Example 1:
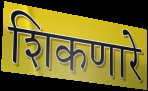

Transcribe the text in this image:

शिकणारे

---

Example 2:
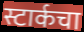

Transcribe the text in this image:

स्टार्कचा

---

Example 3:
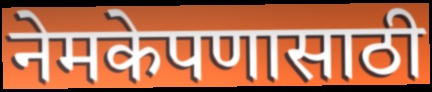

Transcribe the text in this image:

नेमकेपणासाठी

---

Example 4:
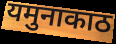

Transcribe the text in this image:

यमुनाकाठ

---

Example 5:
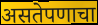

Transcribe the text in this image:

असतेपणाचा